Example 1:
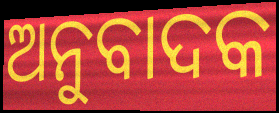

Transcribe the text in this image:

ଅନୁବାଦକ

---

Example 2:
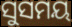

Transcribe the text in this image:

ସୁସମୟ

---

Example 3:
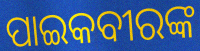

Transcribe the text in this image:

ପାଇକବୀରଙ୍କ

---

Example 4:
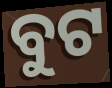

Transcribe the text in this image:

ବୁଟ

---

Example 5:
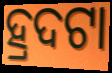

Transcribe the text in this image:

ହ୍ରଦଟା